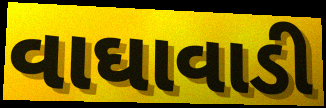
વાઘાવાડી